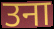
उना